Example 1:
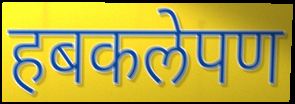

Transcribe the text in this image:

हबकलेपण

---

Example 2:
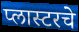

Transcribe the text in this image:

प्लास्टरचे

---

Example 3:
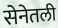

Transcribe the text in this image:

सेनेतली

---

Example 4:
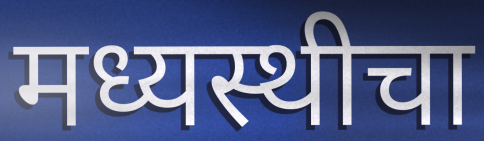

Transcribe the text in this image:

मध्यस्थीचा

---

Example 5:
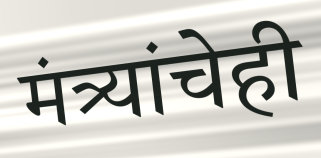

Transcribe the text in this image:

मंत्र्यांचेही